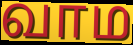
வாம